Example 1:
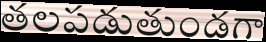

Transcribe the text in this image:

తలపడుతుండగా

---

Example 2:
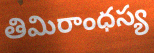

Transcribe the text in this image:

తిమిరాంధస్య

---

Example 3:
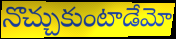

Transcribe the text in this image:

నొచ్చుకుంటాడేమో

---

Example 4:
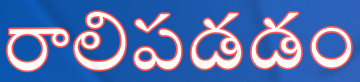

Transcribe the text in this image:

రాలిపడడం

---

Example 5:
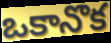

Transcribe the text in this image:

ఒకానొక